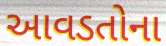
આવડતોના